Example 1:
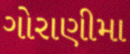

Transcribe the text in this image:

ગોરાણીમા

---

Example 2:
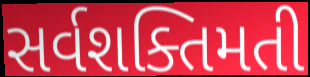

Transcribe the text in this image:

સર્વશક્તિમતી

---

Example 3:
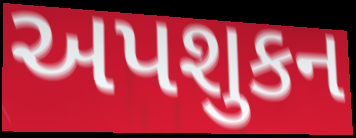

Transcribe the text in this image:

અપશુકન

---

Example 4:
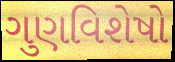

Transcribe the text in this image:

ગુણવિશેષો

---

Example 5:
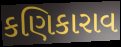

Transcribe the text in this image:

કણિકારાવ